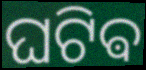
ଘଟିଵ